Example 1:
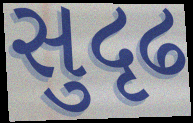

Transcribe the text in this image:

સુદૃઢ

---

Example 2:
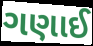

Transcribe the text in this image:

ગણાઈ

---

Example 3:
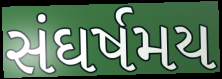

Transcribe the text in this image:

સંઘર્ષમય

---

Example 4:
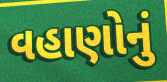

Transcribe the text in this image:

વહાણોનું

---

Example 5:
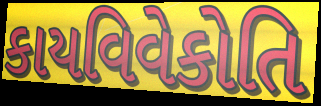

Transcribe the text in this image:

કાયવિવેકોતિ